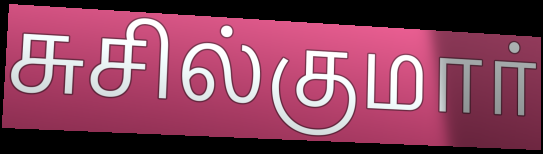
சுசில்குமார்